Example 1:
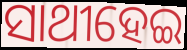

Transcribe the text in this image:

ସାଥୀହେଇ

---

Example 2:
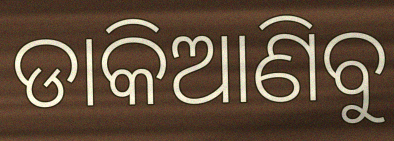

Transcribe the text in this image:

ଡାକିଆଣିବୁ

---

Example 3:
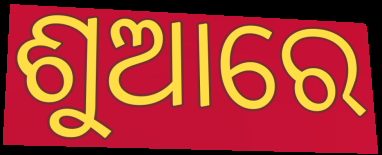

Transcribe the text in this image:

ଶୁଆରେ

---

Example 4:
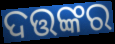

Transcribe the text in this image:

ଦତ୍ତଙ୍କର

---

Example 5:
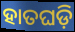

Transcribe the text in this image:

ହାତଘଡ଼ି